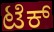
ಟೆಕ್